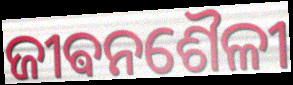
ଜୀଵନଶୈଳୀ